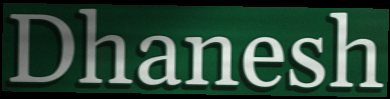
Dhanesh